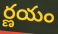
ర్ణయం